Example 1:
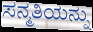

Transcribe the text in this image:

ಸನ್ಮತಿಯನ್ನು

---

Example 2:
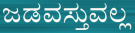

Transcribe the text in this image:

ಜಡವಸ್ತುವಲ್ಲ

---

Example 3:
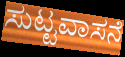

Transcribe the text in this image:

ಸುಟ್ಟವಾಸನೆ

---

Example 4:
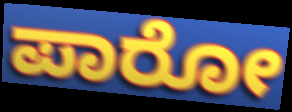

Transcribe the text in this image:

ಪಾರೋ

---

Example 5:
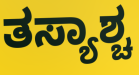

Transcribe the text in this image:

ತಸ್ಯಾಶ್ಚ